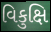
વિકુક્ષિ